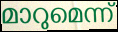
മാറുമെന്ന്